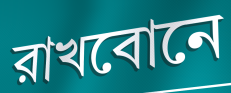
রাখবোনে